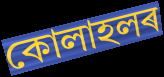
কোলাহলৰ